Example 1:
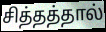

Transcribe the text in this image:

சித்தத்தால்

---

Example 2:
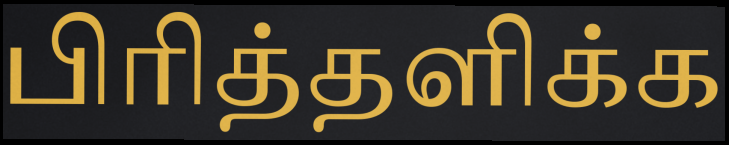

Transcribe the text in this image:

பிரித்தளிக்க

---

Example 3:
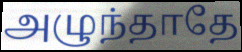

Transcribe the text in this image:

அழுந்தாதே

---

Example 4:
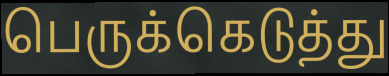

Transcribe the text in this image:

பெருக்கெடுத்து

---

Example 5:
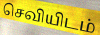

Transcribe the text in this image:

செவியிடம்